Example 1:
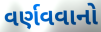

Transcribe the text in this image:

વર્ણવવાનો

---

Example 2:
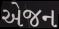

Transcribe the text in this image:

એજન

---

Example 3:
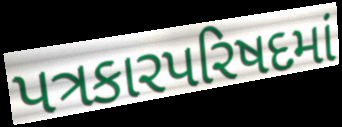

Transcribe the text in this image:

પત્રકારપરિષદમાં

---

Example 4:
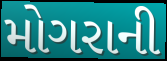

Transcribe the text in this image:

મોગરાની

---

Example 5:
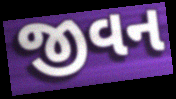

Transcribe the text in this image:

જીવન